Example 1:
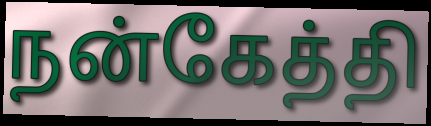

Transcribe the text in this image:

நன்கேத்தி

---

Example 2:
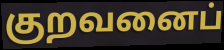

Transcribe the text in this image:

குறவனைப்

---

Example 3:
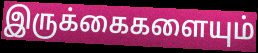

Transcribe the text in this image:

இருக்கைகளையும்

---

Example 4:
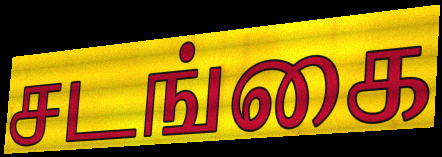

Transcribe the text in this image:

சடங்கை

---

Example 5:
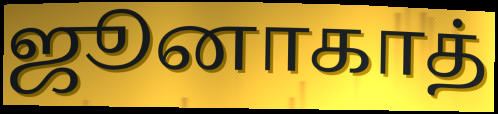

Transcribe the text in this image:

ஜூனாகாத்